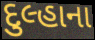
દુલ્હાના